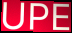
UPE